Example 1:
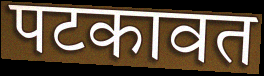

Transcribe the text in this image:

पटकावत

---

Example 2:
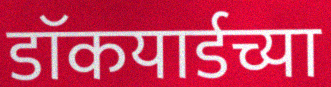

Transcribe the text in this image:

डॉकयार्डच्या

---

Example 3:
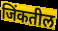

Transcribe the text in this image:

जिंकतील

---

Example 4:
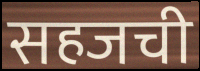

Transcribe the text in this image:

सहजची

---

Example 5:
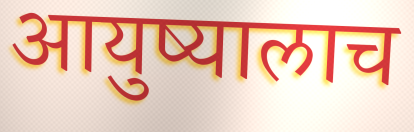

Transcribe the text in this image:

आयुष्यालाच